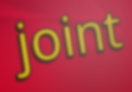
joint